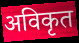
अविकृत